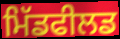
ਮਿੱਡਫੀਲਡ